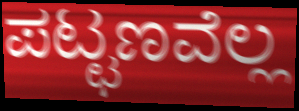
ಪಟ್ಟಣವೆಲ್ಲ